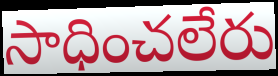
సాధించలేరు